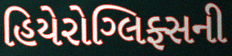
હિયેરોગ્લિફ્સની